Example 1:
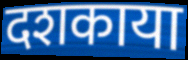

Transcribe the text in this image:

दशकाया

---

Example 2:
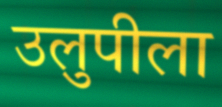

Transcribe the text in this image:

उलुपीला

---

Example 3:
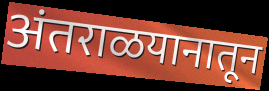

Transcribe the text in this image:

अंतराळयानातून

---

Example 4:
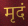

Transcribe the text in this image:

मृदं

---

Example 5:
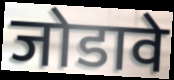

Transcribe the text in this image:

जोडावे